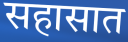
सहासात